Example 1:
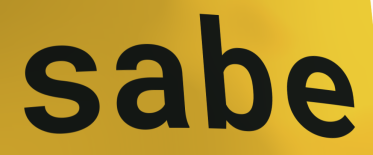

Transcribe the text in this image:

sabe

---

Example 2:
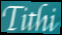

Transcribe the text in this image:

Tithi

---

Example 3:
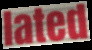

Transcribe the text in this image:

lated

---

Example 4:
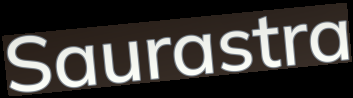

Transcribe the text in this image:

Saurastra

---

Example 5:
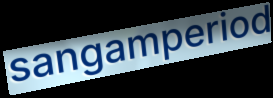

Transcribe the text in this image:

sangamperiod